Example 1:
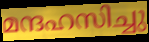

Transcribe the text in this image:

മന്ദഹസിച്ചു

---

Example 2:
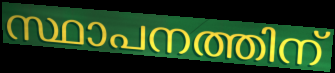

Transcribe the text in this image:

സ്ഥാപനത്തിന്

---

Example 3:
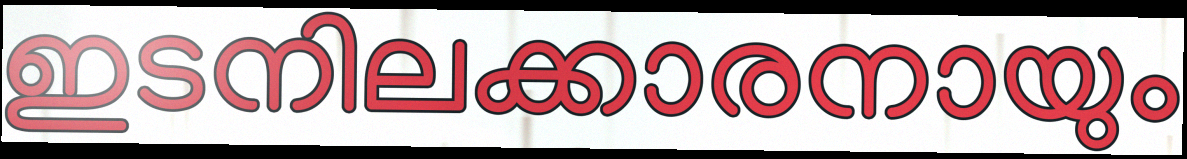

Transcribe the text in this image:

ഇടനിലക്കാരനായും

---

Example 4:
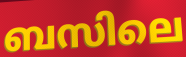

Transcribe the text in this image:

ബസിലെ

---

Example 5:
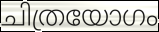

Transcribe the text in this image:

ചിത്രയോഗം